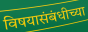
विषयासंबंधीच्या